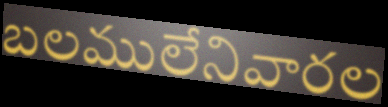
బలములేనివారల